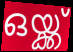
ഒയ്ക്ക്